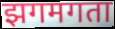
झगमगता